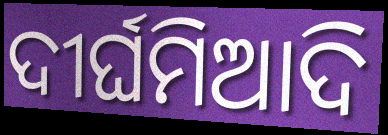
ଦୀର୍ଘମିଆଦି